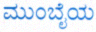
ಮುಂಬೈಯ